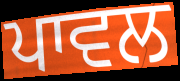
ਪਾਵਲ